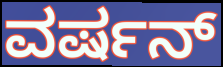
ವರ್ಷನ್